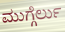
ಮುಗ್ಗೆರ್ಲು